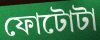
ফোটোটা